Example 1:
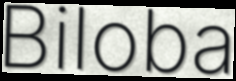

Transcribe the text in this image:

Biloba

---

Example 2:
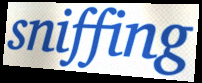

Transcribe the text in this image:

sniffing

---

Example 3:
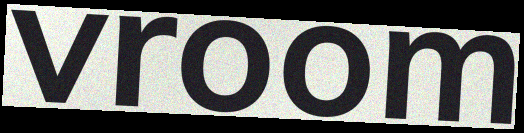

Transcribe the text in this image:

vroom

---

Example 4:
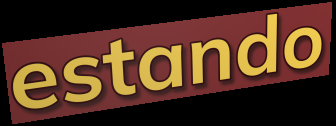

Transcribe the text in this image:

estando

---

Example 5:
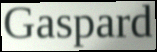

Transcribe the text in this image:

Gaspard